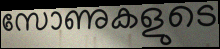
സോണുകളുടെ